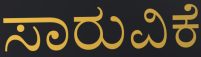
ಸಾರುವಿಕೆ